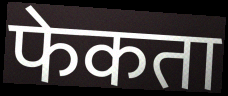
फेकता